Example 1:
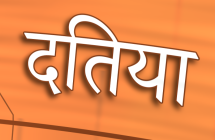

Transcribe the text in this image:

दतिया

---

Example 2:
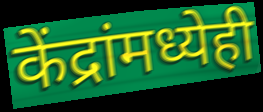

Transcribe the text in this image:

केंद्रांमध्येही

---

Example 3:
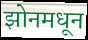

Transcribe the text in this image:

झोनमधून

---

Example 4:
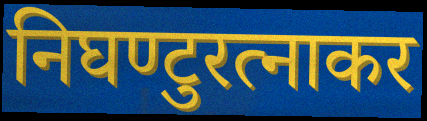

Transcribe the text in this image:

निघण्टुरत्नाकर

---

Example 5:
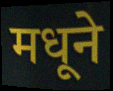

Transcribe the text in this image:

मधूने